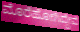
ಮೊರೆಹೋಗಿದ್ದೇವೆ